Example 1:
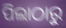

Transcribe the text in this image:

ପିଲାଠାରୁ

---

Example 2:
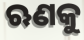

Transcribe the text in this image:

ଋଣକୁ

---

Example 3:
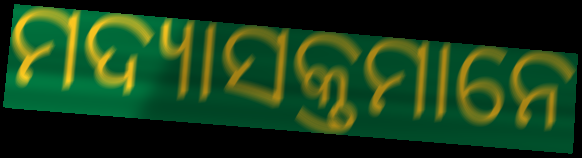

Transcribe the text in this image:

ମଦ୍ୟାସକ୍ତମାନେ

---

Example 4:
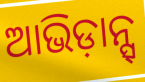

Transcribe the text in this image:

ଆଭିଡ଼ାନ୍ସ୍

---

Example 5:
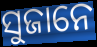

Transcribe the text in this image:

ସୁଜାନେ